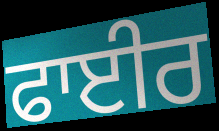
ਫਾਈਰ